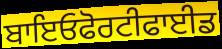
ਬਾਇਓਫੋਰਟੀਫਾਈਡ